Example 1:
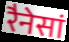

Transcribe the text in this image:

रैनेसां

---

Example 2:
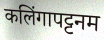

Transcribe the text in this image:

कलिंगापट्टनम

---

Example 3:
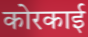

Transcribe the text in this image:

कोरकाई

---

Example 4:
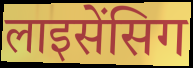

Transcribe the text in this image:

लाइसेंसिग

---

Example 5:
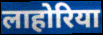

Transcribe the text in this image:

लाहोरिया